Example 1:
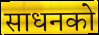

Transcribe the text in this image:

साधनको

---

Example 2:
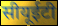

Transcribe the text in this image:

सीयूईटी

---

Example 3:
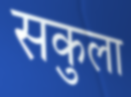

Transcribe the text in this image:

सकुला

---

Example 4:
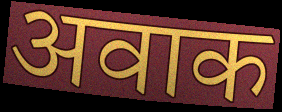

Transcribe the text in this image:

अवाक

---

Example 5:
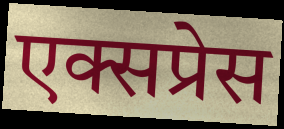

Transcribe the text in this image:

एक्सप्रेस